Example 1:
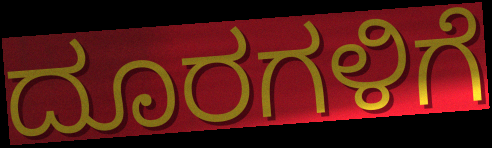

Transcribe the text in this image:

ದೂರಗಳಿಗೆ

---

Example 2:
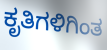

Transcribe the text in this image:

ಕೃತಿಗಳಿಗಿಂತ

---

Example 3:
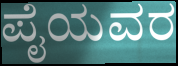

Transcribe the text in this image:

ಪೈಯವರ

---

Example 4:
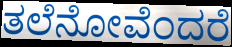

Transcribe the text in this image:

ತಲೆನೋವೆಂದರೆ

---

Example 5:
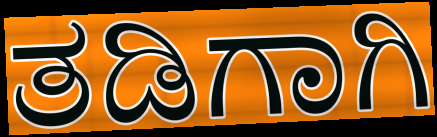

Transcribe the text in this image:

ತಡಿಗಾಗಿ